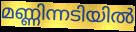
മണ്ണിന്നടിയിൽ